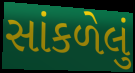
સાંકળેલું